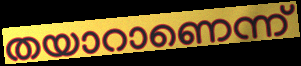
തയാറാണെന്ന്